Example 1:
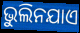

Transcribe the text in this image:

ଭୁଲିନଯାଏ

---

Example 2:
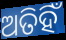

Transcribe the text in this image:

ଅତିହିଁ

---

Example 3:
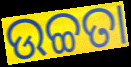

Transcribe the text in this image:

ଉଚ୍ଚତା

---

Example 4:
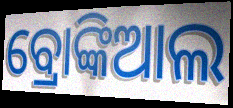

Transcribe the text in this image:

ବ୍ରୋଙ୍କିଆଲ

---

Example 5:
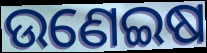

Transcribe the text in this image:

ଉଣେଇଷ